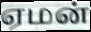
ஏமன்